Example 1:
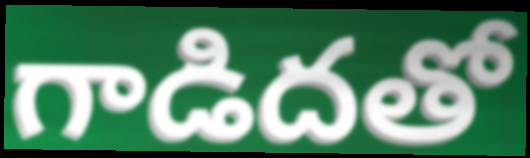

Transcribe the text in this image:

గాడిదతో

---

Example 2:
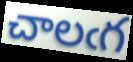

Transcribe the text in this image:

చాలఁగ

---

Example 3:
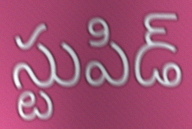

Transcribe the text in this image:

స్టుపిడ్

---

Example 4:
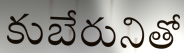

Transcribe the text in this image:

కుబేరునితో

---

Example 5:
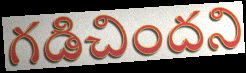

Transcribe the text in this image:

గడిచిందని